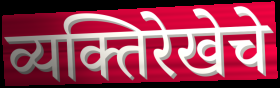
व्यक्तिरेखेचे